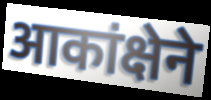
आकांक्षेने